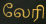
லேரி